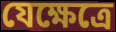
যেক্ষেত্রে